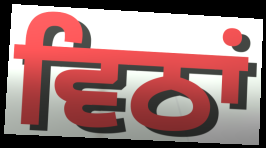
ਵਿਠਾਂ